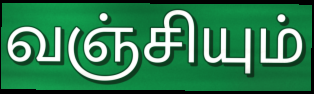
வஞ்சியும்